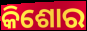
କିଶୋର